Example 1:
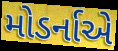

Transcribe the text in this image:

મોડર્નાએ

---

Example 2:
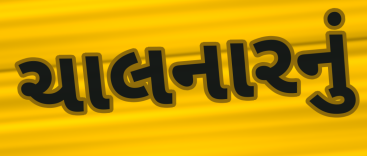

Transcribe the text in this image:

ચાલનારનું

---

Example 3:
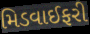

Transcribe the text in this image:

મિડવાઈફરી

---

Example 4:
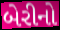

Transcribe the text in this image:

બેરીનો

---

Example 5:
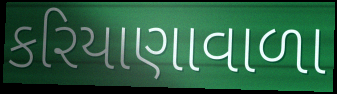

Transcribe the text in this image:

કરિયાણાવાળા